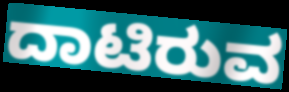
ದಾಟಿರುವ